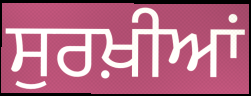
ਸੁਰਖ਼ੀਆਂ